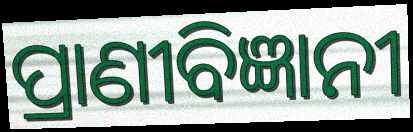
ପ୍ରାଣୀବିଜ୍ଞାନୀ